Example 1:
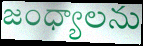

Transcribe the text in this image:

జంధ్యాలను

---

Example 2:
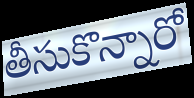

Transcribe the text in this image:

తీసుకొన్నారో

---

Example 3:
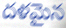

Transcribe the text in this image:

దళమైన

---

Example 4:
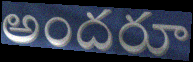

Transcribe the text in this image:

అందరూ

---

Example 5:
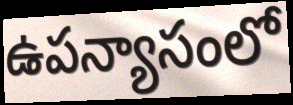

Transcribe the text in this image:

ఉపన్యాసంలో